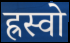
ह्रस्वो